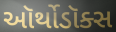
ઑર્થોડૉક્સ